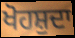
ਖੋਹਸ਼ੁਦਾ